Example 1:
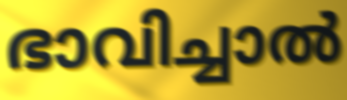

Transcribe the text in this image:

ഭാവിച്ചാൽ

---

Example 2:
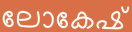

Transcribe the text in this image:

ലോകേഷ്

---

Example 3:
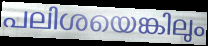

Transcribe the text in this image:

പലിശയെങ്കിലും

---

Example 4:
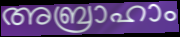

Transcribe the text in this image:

അബ്രാഹാം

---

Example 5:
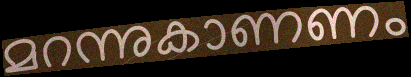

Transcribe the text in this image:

മറന്നുകാണണം